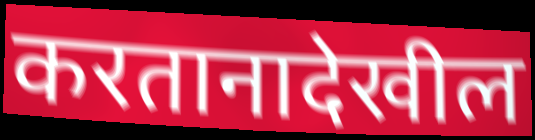
करतानादेखील